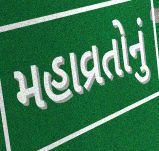
મહાવ્રતોનું